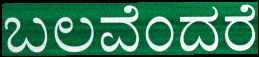
ಬಲವೆಂದರೆ